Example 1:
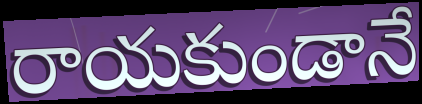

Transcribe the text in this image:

రాయకుండానే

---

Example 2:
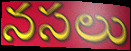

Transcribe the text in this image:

నసలు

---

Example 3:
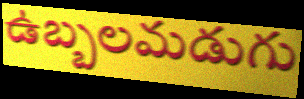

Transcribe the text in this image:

ఉబ్బలమడుగు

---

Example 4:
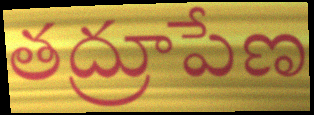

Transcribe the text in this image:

తద్రూపేణ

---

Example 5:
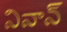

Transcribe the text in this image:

నినాన్